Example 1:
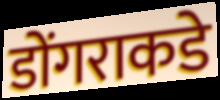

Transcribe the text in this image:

डोंगराकडे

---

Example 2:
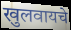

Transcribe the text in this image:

खुलवायचे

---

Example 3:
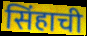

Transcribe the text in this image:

सिंहाची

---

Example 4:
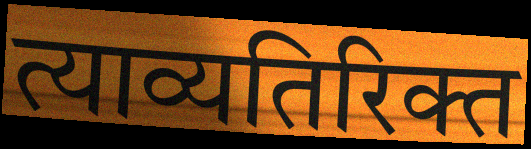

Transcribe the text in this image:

त्याव्यतिरिक्त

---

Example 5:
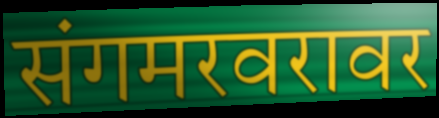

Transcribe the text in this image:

संगमरवरावर